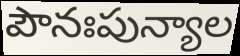
పౌనఃపున్యాల